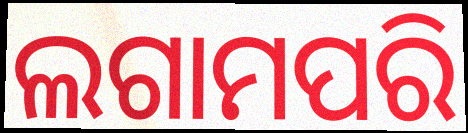
ଲଗାମପରି